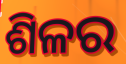
ଶିଳର